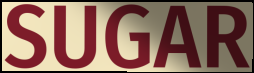
SUGAR